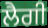
ਲੈਗੀ